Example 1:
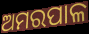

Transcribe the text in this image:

ଅମରପାଳ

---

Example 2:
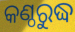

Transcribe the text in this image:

କଣ୍ଠରୁଦ୍ଧ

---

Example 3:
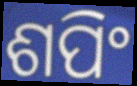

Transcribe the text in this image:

ଶପିଂ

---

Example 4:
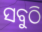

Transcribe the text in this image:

ସବୁଠି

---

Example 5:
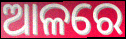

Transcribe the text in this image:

ଆଳରେ